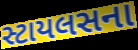
સ્ટાયલસના